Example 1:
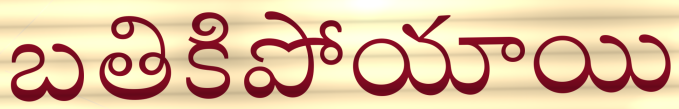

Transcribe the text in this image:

బతికిపోయాయి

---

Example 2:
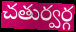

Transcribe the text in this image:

చతుర్వర్గ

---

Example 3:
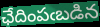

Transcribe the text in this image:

ఛేదింపఁబడిన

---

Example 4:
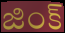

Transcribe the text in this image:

జింక్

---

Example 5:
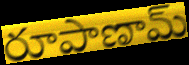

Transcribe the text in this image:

రూపాణామ్